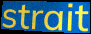
strait